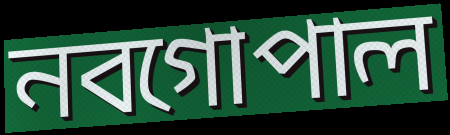
নবগোপাল